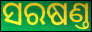
ସରଷଣ୍ତ